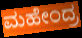
ಮಹೇಂದ್ರ